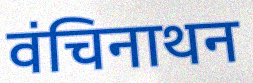
वंचिनाथन